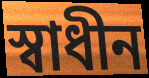
স্ৱাধীন